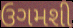
ઉગમશી